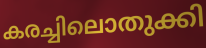
കരച്ചിലൊതുക്കി